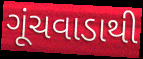
ગૂંચવાડાથી